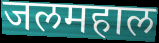
जलमहाल